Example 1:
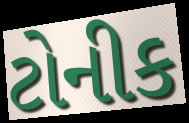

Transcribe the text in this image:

ટોનીક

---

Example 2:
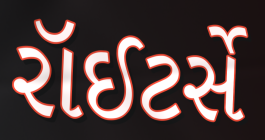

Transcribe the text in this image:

રૉઈટર્સે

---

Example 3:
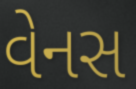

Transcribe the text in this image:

વેનસ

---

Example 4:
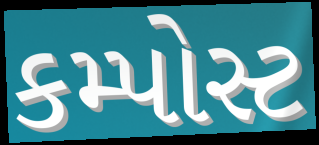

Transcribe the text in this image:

કમ્પોસ્ટ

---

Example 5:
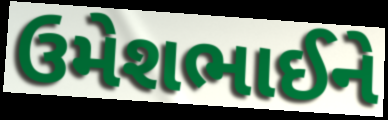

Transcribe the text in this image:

ઉમેશભાઈને